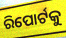
ରିପୋର୍ଟକୁ